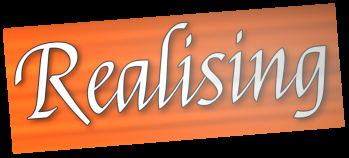
Realising